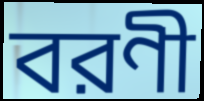
বরণী